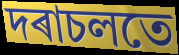
দৰাচলতে